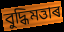
বুদ্ধিমত্তাৰ